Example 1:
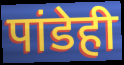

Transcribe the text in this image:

पांडेही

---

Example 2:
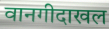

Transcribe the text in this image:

वानगीदाखल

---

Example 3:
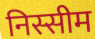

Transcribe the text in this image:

निस्सीम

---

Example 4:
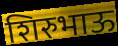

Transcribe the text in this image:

शिरुभाऊ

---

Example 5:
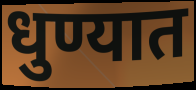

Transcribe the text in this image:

धुण्यात